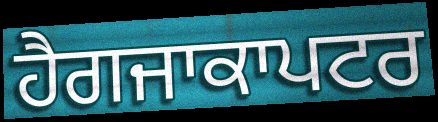
ਹੈਗਜਾਕਾਪਟਰ